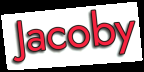
Jacoby